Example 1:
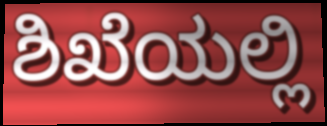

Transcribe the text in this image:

ಶಿಖೆಯಲ್ಲಿ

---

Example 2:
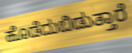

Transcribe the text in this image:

ಹೊಡೆದುಬಿಡುತ್ತಾರೆ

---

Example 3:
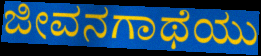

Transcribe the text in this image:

ಜೀವನಗಾಥೆಯು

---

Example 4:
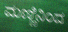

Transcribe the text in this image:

ಮಣ್ಣಿನಿಂದ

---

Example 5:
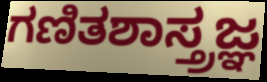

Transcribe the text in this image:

ಗಣಿತಶಾಸ್ತ್ರಜ್ಞ